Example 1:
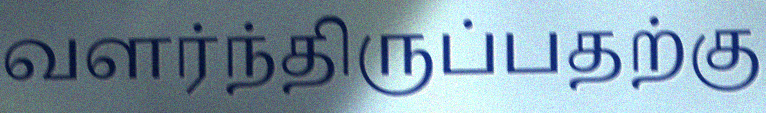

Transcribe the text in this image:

வளர்ந்திருப்பதற்கு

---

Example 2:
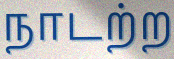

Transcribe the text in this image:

நாடற்ற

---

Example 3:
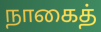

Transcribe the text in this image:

நாகைத்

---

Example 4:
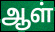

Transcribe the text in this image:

ஆள்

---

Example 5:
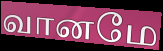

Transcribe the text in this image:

வானமே